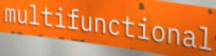
multifunctional